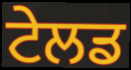
ਟੇਲਡ